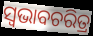
ସ୍ବଭାବଚରିତ୍ର